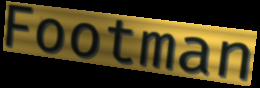
Footman